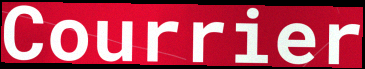
Courrier